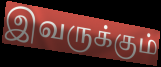
இவருக்கும்